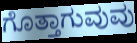
ಗೊತ್ತಾಗುವುವು